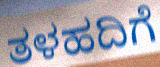
ತಳಹದಿಗೆ